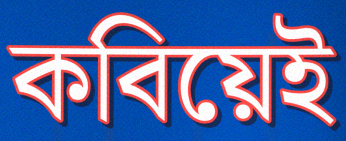
কবিয়েই